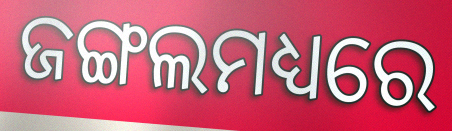
ଜଙ୍ଗଲମଧ୍ୟରେ